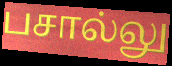
பசால்லு